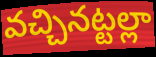
వచ్చినట్టల్లా